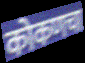
कोकणचा